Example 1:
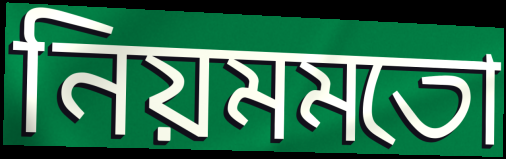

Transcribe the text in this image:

নিয়মমতো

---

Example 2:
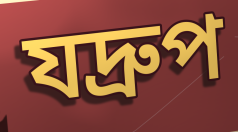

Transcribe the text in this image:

যদ্রুপ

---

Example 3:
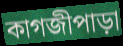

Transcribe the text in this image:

কাগজীপাড়া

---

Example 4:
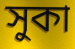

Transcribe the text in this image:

সুকা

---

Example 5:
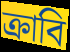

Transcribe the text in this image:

ক্রাবি